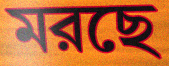
মরছে